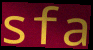
sfa